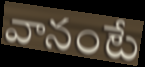
వానంటే